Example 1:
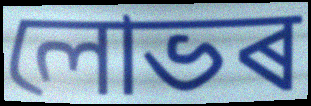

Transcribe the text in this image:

লোভৰ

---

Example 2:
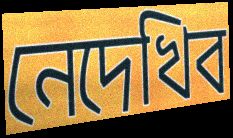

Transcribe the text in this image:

নেদেখিব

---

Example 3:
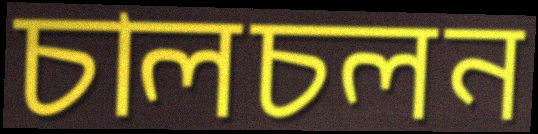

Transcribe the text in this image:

চালচলন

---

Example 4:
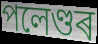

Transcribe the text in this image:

পলেণ্ডৰ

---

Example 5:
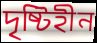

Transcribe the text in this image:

দৃষ্টিহীন